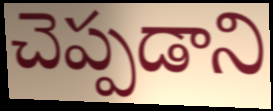
చెప్పడాని